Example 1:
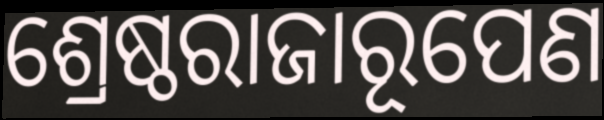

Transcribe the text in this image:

ଶ୍ରେଷ୍ଠରାଜାରୂପେଣ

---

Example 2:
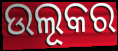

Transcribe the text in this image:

ଉଲୂକର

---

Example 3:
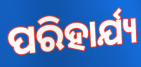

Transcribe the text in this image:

ପରିହାର୍ଯ୍ୟ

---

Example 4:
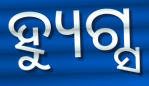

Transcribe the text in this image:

ହ୍ୟୁଗ୍ସ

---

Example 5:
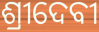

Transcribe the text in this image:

ଶ୍ରୀଦେବୀ